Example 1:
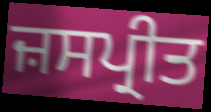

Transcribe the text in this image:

ਜ਼ਸਪ੍ਰੀਤ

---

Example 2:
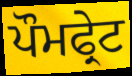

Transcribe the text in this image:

ਪੌਮਫ੍ਰੇਟ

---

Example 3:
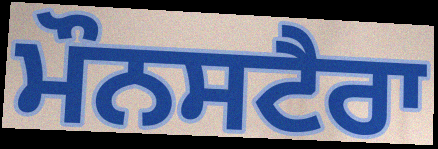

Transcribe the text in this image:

ਮੌਨਸਟੈਰਾ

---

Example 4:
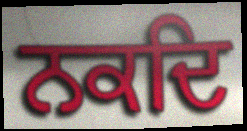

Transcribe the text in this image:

ਨਕਦਿ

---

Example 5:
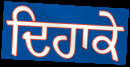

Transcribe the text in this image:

ਦਿਹਾਕੇ